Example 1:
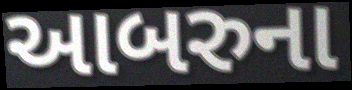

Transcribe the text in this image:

આબરુના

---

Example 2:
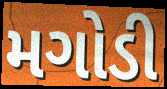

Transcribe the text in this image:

મગોડી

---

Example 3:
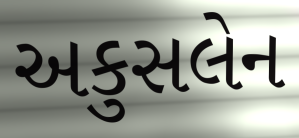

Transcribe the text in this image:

અકુસલેન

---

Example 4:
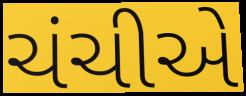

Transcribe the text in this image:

ચંચીએ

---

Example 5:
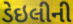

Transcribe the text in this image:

ડેઇલીની